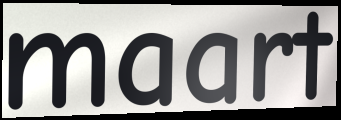
maart